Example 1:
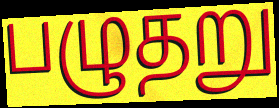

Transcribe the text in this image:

பழுதறு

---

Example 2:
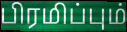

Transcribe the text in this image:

பிரமிப்பும்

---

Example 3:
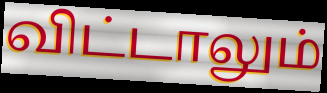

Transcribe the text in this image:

விட்டாலும்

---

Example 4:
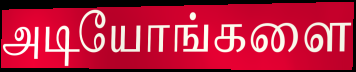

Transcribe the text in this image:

அடியோங்களை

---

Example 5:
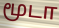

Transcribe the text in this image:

மூடா